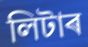
লিটাৰ